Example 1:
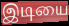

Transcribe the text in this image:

இடியை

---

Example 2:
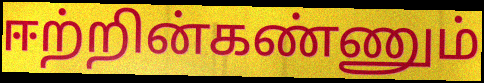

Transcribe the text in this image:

ஈற்றின்கண்ணும்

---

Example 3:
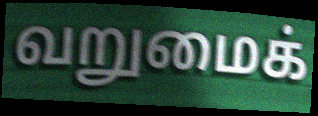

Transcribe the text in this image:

வறுமைக்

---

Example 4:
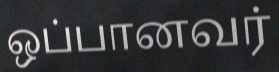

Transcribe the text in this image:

ஒப்பானவர்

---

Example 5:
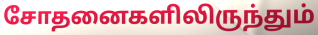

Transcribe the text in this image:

சோதனைகளிலிருந்தும்